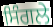
ਸਿੰਗਲੇ